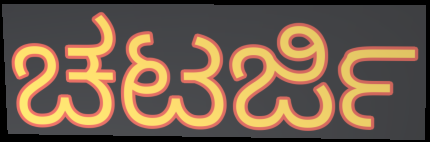
ಚಟರ್ಜಿ